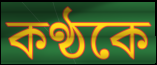
কণ্ঠকে